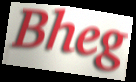
Bheg